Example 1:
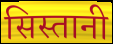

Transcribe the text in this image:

सिस्तानी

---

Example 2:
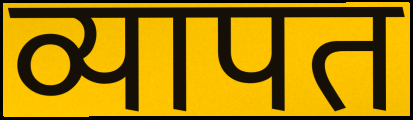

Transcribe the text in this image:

व्यापत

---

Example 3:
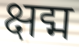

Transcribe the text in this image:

क्षद्म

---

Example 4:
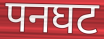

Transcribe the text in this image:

पनघट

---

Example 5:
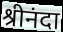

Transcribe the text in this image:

श्रीनंदा